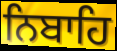
ਨਿਬਾਹਿ